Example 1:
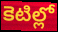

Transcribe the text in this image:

కెటిల్లో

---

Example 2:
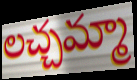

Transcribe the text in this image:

లచ్చమ్మా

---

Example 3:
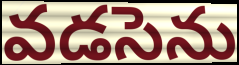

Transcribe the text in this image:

వడసెను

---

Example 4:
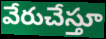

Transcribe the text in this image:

వేరుచేస్తూ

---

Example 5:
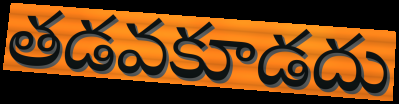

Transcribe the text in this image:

తడవకూడదు